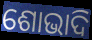
ଶୋଭାଦି